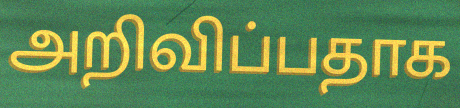
அறிவிப்பதாக